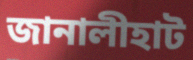
জানালীহাট